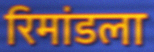
रिमांडला